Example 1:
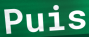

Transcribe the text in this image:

Puis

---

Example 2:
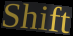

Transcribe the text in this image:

Shift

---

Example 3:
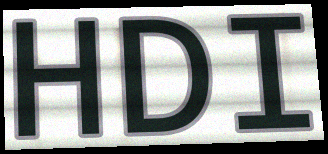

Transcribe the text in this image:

HDI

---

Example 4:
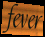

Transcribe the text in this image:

fever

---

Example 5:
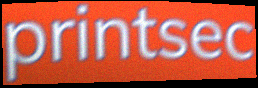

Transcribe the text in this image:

printsec